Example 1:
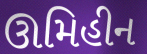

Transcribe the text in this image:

ઊમિહીન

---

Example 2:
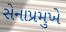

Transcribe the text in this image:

સેનાપ્રમુખે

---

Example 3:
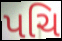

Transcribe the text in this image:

પચિ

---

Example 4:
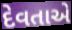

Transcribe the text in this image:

દેવતાએ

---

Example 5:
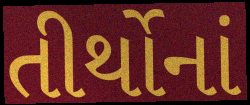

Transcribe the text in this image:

તીર્થોનાં